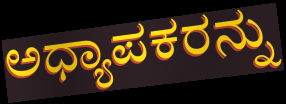
ಅಧ್ಯಾಪಕರನ್ನು